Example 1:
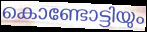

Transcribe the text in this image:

കൊണ്ടോട്ടിയും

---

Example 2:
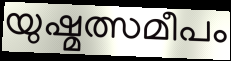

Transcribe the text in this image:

യുഷ്മത്സമീപം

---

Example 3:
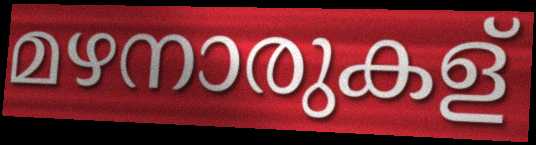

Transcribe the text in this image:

മഴനാരുകള്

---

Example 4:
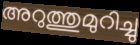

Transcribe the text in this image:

അറുത്തുമുറിച്ചു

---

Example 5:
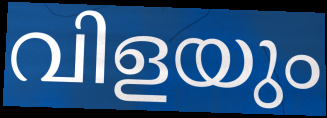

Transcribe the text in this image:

വിളയും